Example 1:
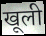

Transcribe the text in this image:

खूली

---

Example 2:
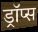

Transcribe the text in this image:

ड्रॉप्‍स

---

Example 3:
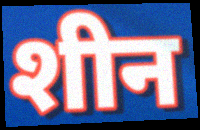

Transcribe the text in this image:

शीन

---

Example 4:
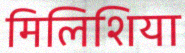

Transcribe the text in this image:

मिलिशिया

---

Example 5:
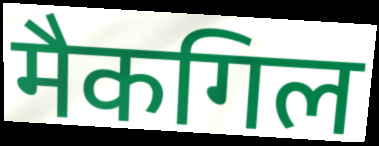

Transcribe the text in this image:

मैकगिल